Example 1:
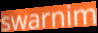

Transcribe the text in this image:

swarnim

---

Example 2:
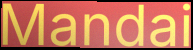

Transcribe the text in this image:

Mandai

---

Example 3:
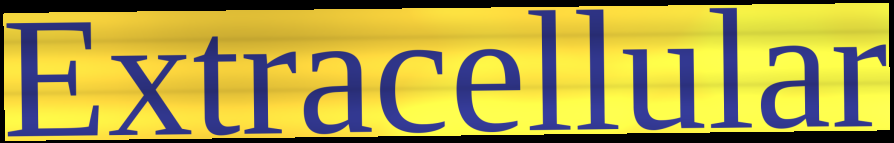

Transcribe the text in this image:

Extracellular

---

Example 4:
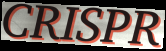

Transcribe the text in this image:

CRISPR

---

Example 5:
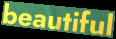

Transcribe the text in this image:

beautiful